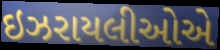
ઇઝરાયલીઓએ